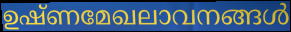
ഉഷ്ണമേഖലാവനങ്ങൾ